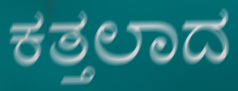
ಕತ್ತಲಾದ